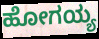
ಹೋಗಯ್ಯ